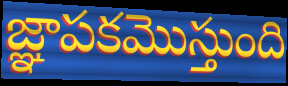
జ్ఞాపకమొస్తుంది